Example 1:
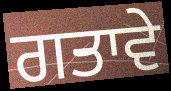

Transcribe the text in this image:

ਗਤਾਵੇ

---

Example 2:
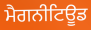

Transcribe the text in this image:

ਮੈਗਨੀਟਿਊਡ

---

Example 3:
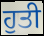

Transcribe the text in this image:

ਹੁਤੀ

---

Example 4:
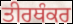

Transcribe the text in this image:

ਤੀਰਥੰਕਰ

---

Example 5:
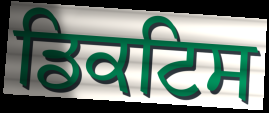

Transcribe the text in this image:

ਡਿਕਟਿਸ